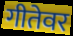
गीतेवर